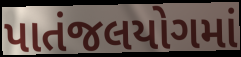
પાતંજલયોગમાં